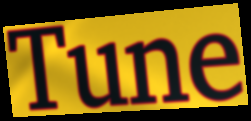
Tune